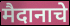
मैदानाचे